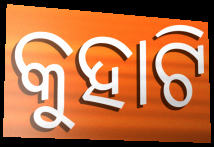
କୁହାଟି